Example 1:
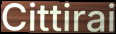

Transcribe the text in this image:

Cittirai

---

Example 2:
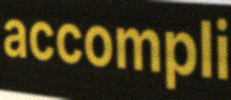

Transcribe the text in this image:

accompli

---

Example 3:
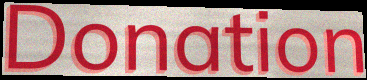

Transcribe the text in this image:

Donation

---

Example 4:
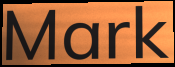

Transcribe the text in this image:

Mark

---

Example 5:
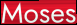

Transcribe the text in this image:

Moses